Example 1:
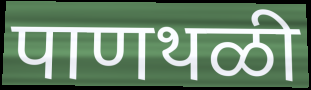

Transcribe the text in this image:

पाणथळी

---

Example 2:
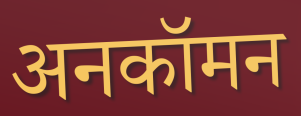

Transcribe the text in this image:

अनकॉमन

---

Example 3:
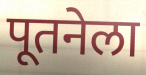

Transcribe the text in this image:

पूतनेला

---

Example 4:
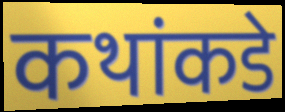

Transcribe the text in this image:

कथांकडे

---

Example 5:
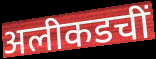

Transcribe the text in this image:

अलीकडचीं